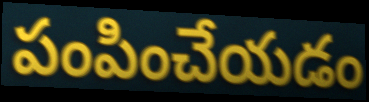
పంపించేయడం